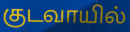
குடவாயில்